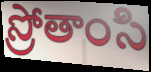
స్రోతాంసి